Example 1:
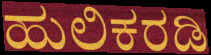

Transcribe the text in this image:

ಹುಲಿಕರಡಿ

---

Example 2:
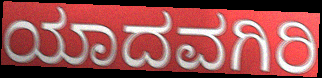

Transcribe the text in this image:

ಯಾದವಗಿರಿ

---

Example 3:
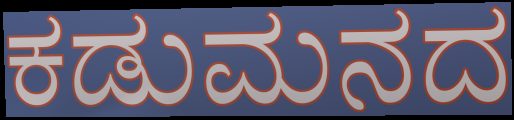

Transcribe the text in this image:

ಕಡುಮನದ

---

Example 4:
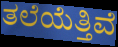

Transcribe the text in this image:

ತಲೆಯೆತ್ತಿವೆ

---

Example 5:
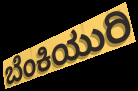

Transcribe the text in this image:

ಬೆಂಕಿಯುರಿ